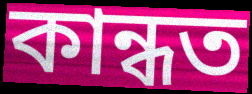
কান্ধত